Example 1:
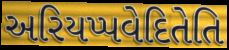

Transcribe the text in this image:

અરિયપ્પવેદિતેતિ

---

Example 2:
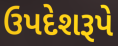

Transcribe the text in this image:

ઉપદેશરૂપે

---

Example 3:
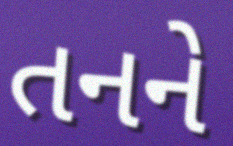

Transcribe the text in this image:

તનને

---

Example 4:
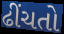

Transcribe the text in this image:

ઢીંચતો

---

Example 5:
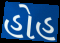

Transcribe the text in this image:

હોહ